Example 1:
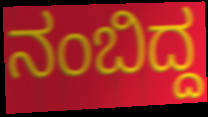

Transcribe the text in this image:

ನಂಬಿದ್ದ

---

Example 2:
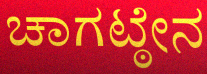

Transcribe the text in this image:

ಚಾಗಟ್ಠೇನ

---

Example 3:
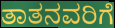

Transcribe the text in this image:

ತಾತನವರಿಗೆ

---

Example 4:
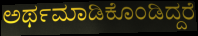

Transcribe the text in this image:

ಅರ್ಥಮಾಡಿಕೊಂಡಿದ್ದರೆ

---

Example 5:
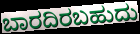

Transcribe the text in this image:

ಬಾರದಿರಬಹುದು